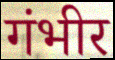
गंभीर